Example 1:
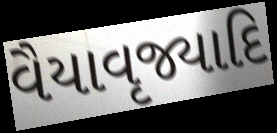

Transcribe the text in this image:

વૈયાવૃજ્યાદિ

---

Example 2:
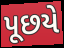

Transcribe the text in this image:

પૂછયે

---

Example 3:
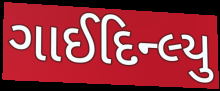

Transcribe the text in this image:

ગાઈદિન્લ્યુ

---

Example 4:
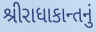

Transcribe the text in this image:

શ્રીરાધાકાન્તનું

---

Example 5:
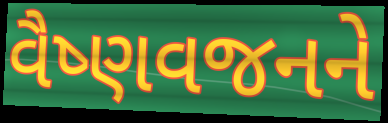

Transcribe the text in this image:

વૈષ્ણવજનને